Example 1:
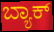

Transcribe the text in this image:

ಬ್ಯಾಕ್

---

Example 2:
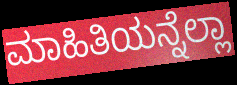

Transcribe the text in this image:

ಮಾಹಿತಿಯನ್ನೆಲ್ಲಾ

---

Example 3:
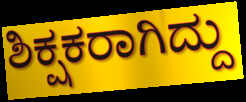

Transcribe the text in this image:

ಶಿಕ್ಷಕರಾಗಿದ್ದು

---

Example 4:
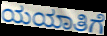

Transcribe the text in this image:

ಯಯಾತಿಗೆ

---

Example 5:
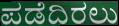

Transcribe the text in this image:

ಪಡೆದಿರಲು